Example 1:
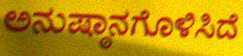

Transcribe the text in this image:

ಅನುಷ್ಠಾನಗೊಳಿಸಿದೆ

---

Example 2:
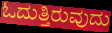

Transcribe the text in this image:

ಓದುತ್ತಿರುವುದು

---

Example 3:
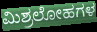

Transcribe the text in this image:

ಮಿಶ್ರಲೋಹಗಳ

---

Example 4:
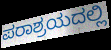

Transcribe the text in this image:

ಪರಾಶ್ರಯದಲ್ಲಿ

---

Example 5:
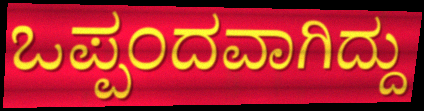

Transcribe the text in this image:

ಒಪ್ಪಂದವಾಗಿದ್ದು